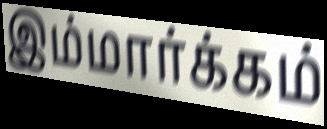
இம்மார்க்கம்